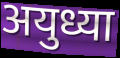
अयुध्या